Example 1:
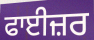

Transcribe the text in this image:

ਫਾਈਜ਼ਰ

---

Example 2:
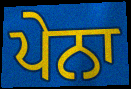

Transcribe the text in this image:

ਪੇਨਾ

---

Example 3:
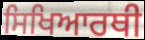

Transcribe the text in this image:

ਸਿਖਿਆਰਥੀ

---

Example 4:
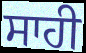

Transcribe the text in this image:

ਸਾਹੀ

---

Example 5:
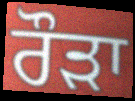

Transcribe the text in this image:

ਰੌੜਾ